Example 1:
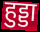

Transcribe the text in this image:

हुड्डा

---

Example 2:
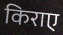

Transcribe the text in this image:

किराए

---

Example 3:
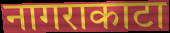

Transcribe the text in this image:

नागराकाटा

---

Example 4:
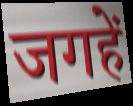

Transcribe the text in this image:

जगहें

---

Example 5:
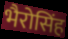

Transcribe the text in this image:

भैरोसिंह